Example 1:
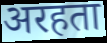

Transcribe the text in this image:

अरहता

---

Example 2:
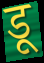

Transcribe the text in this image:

डू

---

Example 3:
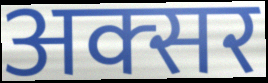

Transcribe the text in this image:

अक्‍सर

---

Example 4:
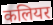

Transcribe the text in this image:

कलियर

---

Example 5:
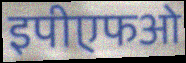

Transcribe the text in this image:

इपीएफओ